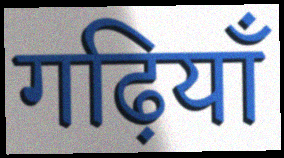
गढ़ियाँ